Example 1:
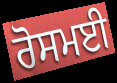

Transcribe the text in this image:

ਰੋਸਮਈ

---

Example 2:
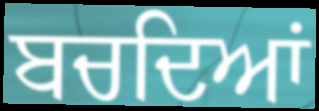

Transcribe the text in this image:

ਬਚਦਿਆਂ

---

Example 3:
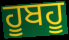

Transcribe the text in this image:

ਹੂਬਹੂ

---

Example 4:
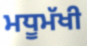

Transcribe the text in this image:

ਮਧੂਮੱਖੀ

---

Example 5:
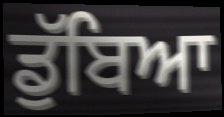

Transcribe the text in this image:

ਡੁੱਬਿਆ